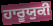
ਹਾਰੂਯੁਕੀ